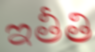
ఇతీతి